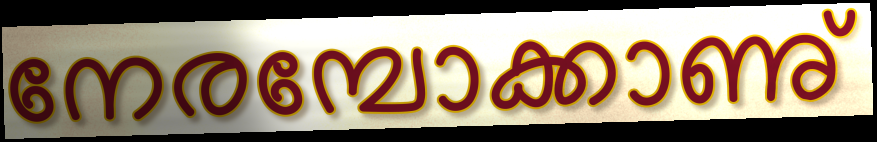
നേരമ്പോക്കാണു്